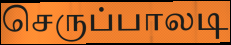
செருப்பாலடி